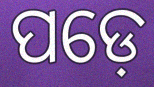
ପଡ଼େ